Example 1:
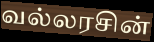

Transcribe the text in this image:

வல்லரசின்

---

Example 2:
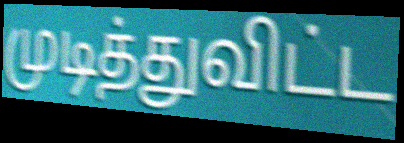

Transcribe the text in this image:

முடித்துவிட்ட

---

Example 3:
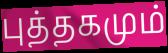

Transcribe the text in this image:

புத்தகமும்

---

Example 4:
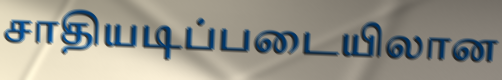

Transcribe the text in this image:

சாதியடிப்படையிலான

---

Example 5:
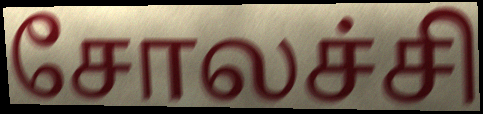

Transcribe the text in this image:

சோலச்சி